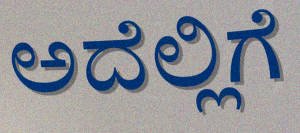
ಅದೆಲ್ಲಿಗೆ